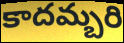
కాదమ్బరి